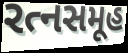
રત્નસમૂહ